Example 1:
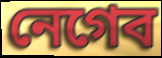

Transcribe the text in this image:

নেগেব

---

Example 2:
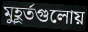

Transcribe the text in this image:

মুহূর্তগুলোয়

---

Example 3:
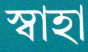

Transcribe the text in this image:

স্বাহা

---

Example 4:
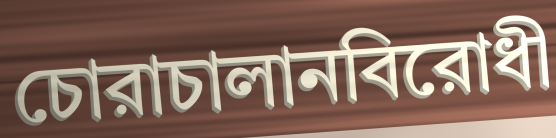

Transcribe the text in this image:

চোরাচালানবিরোধী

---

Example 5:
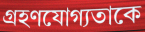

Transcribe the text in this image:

গ্রহণযোগ্যতাকে